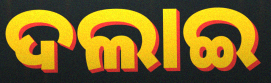
ଦଲାଇ